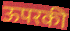
ऊपरकी